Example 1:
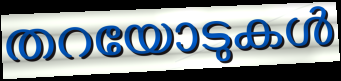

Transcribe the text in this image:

തറയോടുകൾ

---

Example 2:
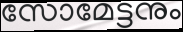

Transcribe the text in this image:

സോമേട്ടനും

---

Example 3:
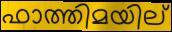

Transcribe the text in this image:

ഫാത്തിമയില്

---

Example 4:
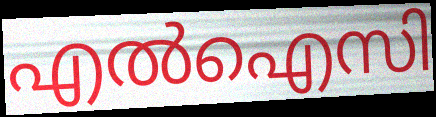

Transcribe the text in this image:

എൽഐസി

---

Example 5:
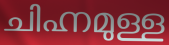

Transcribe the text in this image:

ചിഹ്നമുള്ള